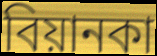
বিয়ানকা